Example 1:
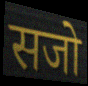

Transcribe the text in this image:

सजो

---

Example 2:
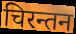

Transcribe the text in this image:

चिरन्तन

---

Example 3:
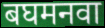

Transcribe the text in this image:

बघमनवा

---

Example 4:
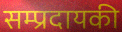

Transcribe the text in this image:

सम्प्रदायकी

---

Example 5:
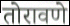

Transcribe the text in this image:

तोरावणे